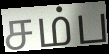
சம்ப